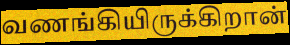
வணங்கியிருக்கிறான்